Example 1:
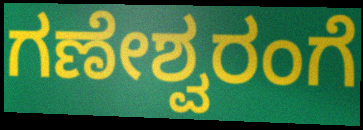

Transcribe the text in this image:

ಗಣೇಶ್ವರಂಗೆ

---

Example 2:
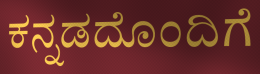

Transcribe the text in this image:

ಕನ್ನಡದೊಂದಿಗೆ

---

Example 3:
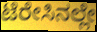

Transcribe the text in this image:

ಟೆರೇಸಿನಲ್ಲೇ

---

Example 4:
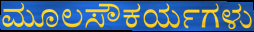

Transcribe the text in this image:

ಮೂಲಸೌಕರ್ಯಗಳು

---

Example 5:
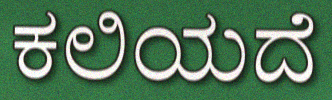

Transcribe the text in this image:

ಕಲಿಯದೆ